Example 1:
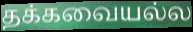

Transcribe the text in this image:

தக்கவையல்ல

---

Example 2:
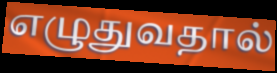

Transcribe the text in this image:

எழுதுவதால்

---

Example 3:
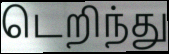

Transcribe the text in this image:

டெறிந்து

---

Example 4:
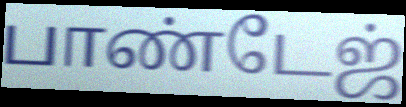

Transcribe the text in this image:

பாண்டேஜ்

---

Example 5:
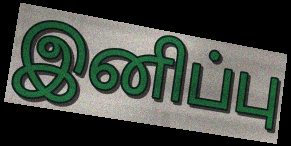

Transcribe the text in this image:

இனிப்பு